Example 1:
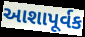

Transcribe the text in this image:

આશાપૂર્વક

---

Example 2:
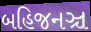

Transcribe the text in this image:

બહિજનઞ્ચ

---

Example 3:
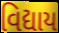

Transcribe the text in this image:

વિદ્યાય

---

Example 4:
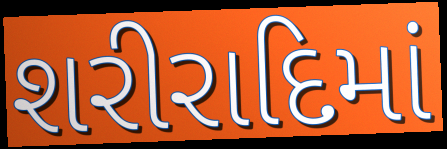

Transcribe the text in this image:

શરીરાદિમાં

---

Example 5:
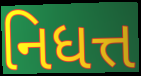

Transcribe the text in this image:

નિધત્ત